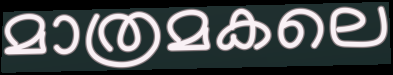
മാത്രമകലെ